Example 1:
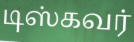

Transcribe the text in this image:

டிஸ்கவர்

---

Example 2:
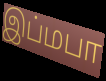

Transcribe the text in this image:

இப்மபா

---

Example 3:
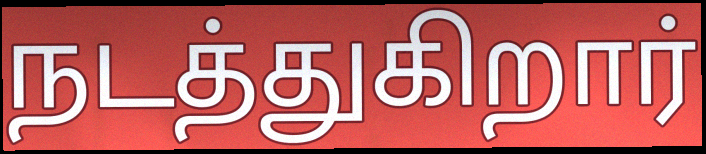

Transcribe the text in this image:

நடத்துகிறார்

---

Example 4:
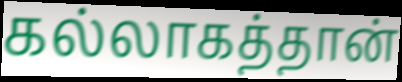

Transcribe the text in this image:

கல்லாகத்தான்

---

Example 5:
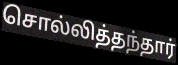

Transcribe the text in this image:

சொல்லித்தந்தார்